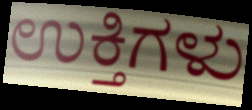
ಉಕ್ತಿಗಳು